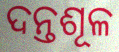
ଦନ୍ତଶୂଳ